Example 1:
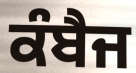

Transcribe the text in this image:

ਕੰਬੈਜ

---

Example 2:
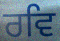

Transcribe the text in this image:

ਰਵਿ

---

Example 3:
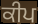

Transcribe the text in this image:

ਕੀਪ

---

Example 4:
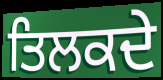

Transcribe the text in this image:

ਤਿਲਕਦੇ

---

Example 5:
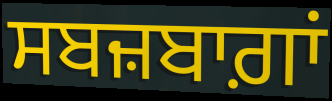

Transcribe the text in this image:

ਸਬਜ਼ਬਾਗ਼ਾਂ